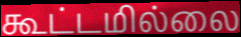
கூட்டமில்லை